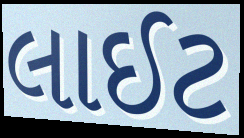
લાઈટ